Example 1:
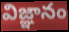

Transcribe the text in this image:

విజ్ఞానం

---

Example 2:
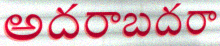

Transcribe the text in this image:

అదరాబదరా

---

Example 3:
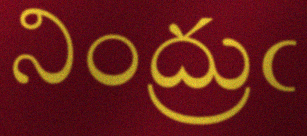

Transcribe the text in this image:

నింద్రుఁ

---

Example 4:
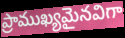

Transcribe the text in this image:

ప్రాముఖ్యమైనవిగా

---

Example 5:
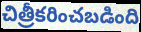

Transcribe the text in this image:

చిత్రీకరించబడింది